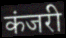
कंजरी